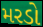
મરડો